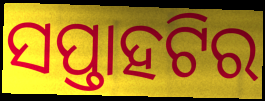
ସପ୍ତାହଟିର